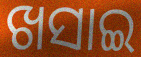
ଖସାଇ